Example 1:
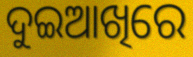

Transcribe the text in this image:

ଦୁଇଆଖିରେ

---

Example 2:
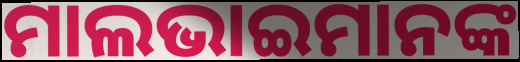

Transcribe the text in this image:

ମାଲଭାଇମାନଙ୍କ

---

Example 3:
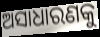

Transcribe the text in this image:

ଅସାଧାରଣକୁ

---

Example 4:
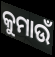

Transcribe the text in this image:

କୁମାଉଁ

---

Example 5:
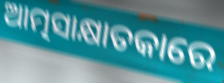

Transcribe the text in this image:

ଆତ୍ମସାକ୍ଷାତକାରେ